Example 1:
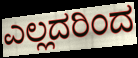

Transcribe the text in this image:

ಎಲ್ಲದರಿಂದ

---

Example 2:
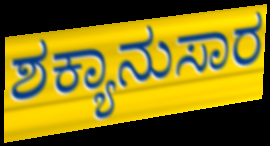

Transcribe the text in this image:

ಶಕ್ಯಾನುಸಾರ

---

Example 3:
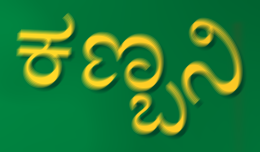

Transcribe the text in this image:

ಕಣ್ಬನಿ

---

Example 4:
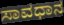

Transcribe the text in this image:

ಸಾವಧಾನ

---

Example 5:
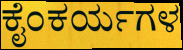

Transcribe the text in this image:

ಕೈಂಕರ್ಯಗಳ